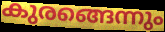
കുരങ്ങെന്നും